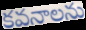
కవనాలను